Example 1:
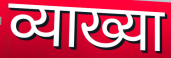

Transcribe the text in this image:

व्याख्या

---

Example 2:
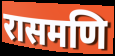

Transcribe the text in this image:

रासमणि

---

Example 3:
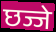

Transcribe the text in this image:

छज्जे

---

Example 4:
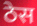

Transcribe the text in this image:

ठेस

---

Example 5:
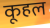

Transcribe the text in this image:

कूहल